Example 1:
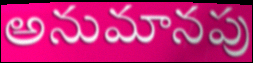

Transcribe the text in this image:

అనుమానపు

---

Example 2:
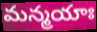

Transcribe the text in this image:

మన్మయాః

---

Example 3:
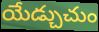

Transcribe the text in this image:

యేడ్చుచుం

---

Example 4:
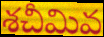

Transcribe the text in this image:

శచీమివ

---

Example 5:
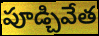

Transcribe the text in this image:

పూడ్చివేత